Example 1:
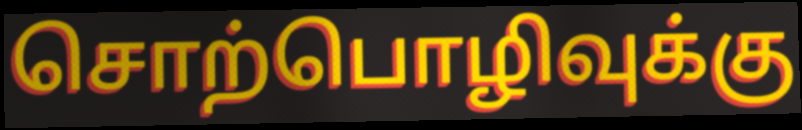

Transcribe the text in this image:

சொற்பொழிவுக்கு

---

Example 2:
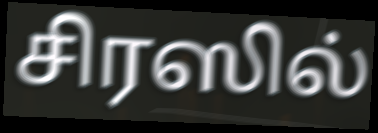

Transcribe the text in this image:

சிரஸில்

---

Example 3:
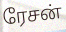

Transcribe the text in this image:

ரேசன்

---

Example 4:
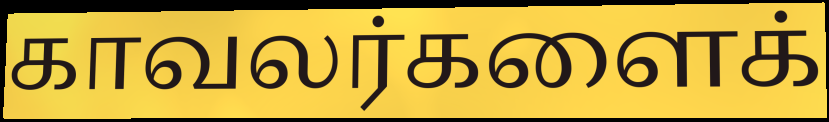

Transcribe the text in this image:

காவலர்களைக்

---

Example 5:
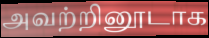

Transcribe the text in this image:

அவற்றினூடாக